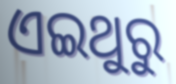
ଏଇଥୁରୁ